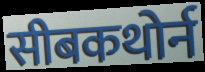
सीबकथोर्न